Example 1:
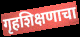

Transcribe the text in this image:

गृहशिक्षणाचा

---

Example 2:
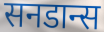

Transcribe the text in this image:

सनडान्स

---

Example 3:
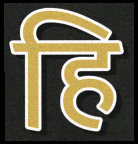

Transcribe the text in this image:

हि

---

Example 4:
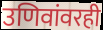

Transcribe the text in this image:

उणिवांवरही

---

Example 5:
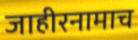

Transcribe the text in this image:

जाहीरनामाच